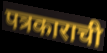
पत्रकाराची